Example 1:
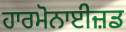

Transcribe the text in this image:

ਹਾਰਮੋਨਾਈਜ਼ਡ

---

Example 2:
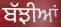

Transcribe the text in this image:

ਬੱਝੀਆਂ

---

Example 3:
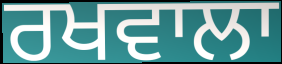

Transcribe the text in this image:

ਰਖਵਾਲਾ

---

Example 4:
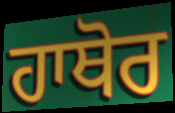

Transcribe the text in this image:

ਹਾਥੋਰ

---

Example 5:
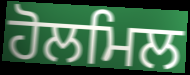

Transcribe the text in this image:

ਹੋਲਮਿਲ